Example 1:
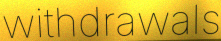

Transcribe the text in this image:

withdrawals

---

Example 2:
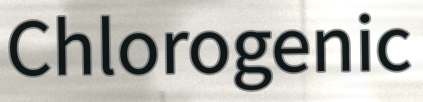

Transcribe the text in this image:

Chlorogenic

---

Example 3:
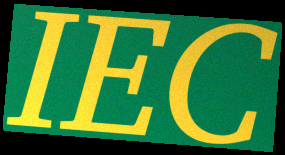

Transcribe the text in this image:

IEC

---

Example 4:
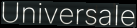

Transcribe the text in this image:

Universale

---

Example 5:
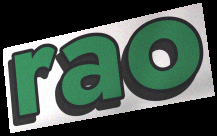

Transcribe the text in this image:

rao